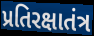
પ્રતિરક્ષાતંત્ર